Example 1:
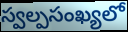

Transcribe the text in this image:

స్వల్పసంఖ్యలో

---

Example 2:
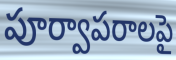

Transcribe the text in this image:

పూర్వాపరాలపై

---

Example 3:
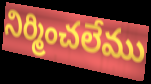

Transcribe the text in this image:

నిర్మించలేము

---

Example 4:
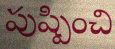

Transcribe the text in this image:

పుష్పించి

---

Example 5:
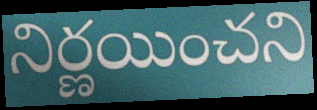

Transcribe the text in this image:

నిర్ణయించని